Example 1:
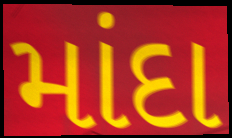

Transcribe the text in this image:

માંદા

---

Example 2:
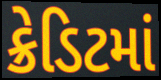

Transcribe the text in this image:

ક્રેડિટમાં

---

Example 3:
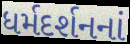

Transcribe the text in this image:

ધર્મદર્શનનાં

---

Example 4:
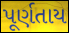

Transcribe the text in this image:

પૂર્ણતાય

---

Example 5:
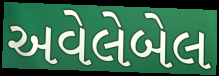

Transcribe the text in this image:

અવેલેબેલ